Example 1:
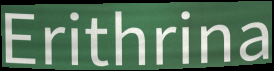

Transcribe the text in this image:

Erithrina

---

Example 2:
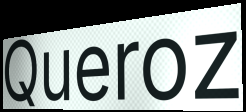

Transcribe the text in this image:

Queroz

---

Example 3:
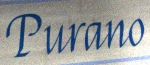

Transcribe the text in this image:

Purano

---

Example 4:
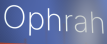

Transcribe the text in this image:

Ophrah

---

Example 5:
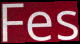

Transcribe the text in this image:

Fes